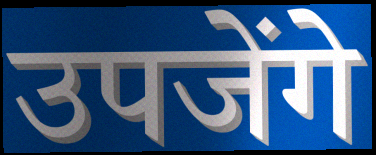
उपजेंगे